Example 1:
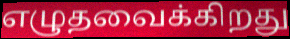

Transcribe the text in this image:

எழுதவைக்கிறது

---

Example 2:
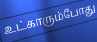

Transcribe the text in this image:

உட்காரும்போது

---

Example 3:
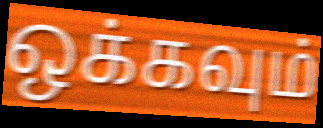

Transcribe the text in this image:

ஒக்கவும்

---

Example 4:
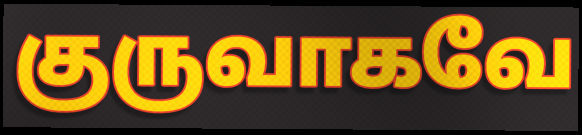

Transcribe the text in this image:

குருவாகவே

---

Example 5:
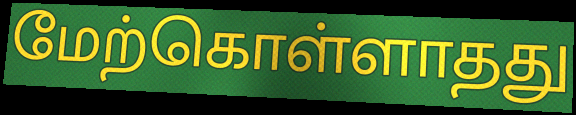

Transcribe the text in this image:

மேற்கொள்ளாதது